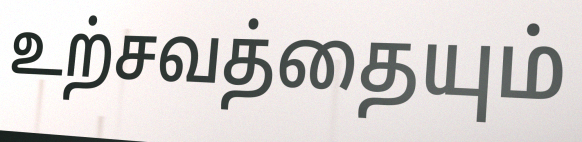
உற்சவத்தையும்